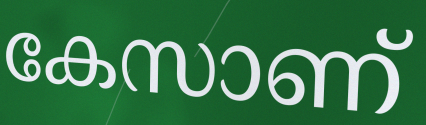
കേസാണ്